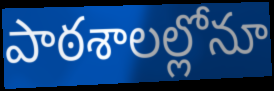
పాఠశాలల్లోనూ